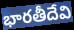
భారతీదేవి